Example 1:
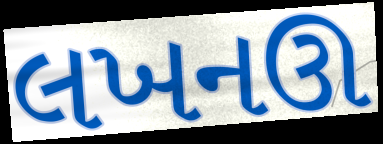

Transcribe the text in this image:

લખનઊ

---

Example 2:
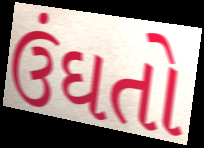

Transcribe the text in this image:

ઉંઘતો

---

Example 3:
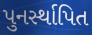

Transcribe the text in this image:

પુનર્સ્થાપિત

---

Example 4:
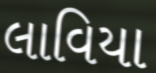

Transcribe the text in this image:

લાવિયા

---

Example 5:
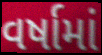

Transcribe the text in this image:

વર્ષામાં